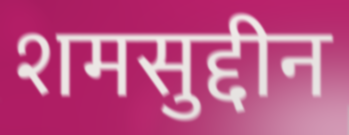
शमसुद्दीन